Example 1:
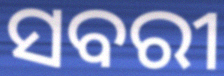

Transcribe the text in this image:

ସବରୀ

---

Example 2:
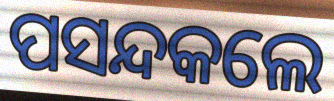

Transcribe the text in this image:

ପସନ୍ଦକଲେ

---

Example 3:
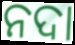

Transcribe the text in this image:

ନଦା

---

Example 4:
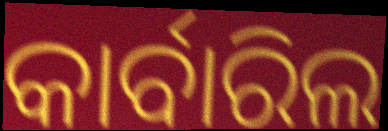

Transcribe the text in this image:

କାର୍ବାରିଲ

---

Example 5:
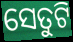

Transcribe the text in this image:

ସେତୁଟି